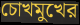
চোখমুখের